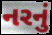
નરનું